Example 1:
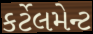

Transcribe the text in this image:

કર્ટેલમેન્ટ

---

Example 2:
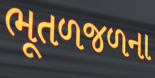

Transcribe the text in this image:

ભૂતળજળના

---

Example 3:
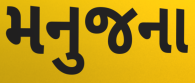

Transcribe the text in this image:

મનુજના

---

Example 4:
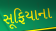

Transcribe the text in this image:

સૂફિયાના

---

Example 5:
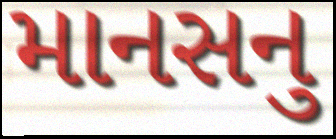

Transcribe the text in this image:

માનસનુ